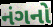
નંગનો